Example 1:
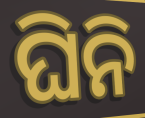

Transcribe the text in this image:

ଘିନି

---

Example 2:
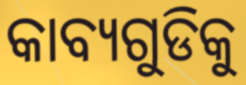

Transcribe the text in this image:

କାବ୍ୟଗୁଡିକୁ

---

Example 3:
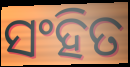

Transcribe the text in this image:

ସଂହିତ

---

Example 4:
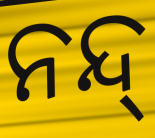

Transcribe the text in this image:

ନନ୍ଦ୍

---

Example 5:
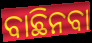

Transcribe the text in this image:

ବାଛିନବା